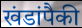
खंडांपैकी